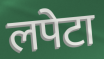
लपेटा